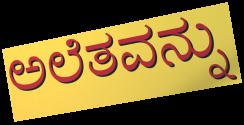
ಅಲೆತವನ್ನು